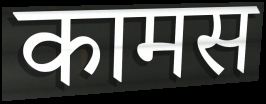
कामस